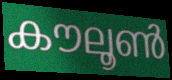
കൗലൂൺ